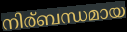
നിര്ബന്ധമായ